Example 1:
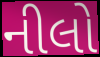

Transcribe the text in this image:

નીલો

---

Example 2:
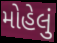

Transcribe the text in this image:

મોહેલું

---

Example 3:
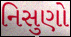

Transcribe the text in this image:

નિસુણો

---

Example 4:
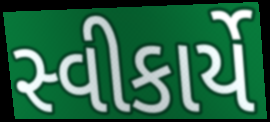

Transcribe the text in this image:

સ્વીકાર્યે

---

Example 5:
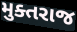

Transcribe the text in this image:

મુક્તરાજ